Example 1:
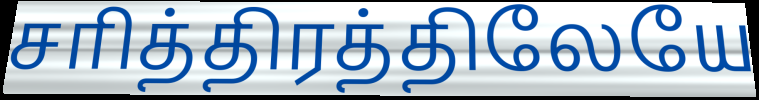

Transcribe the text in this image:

சரித்திரத்திலேயே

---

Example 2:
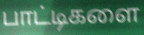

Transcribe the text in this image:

பாட்டிகளை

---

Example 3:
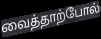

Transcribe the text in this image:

வைத்தாற்போல்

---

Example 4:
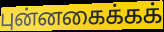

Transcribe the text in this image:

புன்னகைக்கக்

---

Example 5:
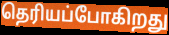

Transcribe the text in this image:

தெரியப்போகிறது